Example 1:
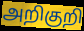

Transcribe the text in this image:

அறிகுறி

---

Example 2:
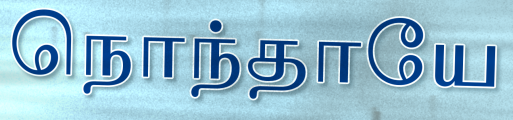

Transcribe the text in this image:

நொந்தாயே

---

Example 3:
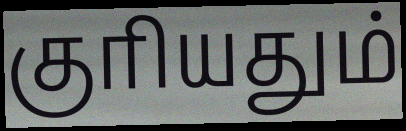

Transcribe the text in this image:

குரியதும்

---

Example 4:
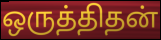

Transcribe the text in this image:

ஒருத்திதன்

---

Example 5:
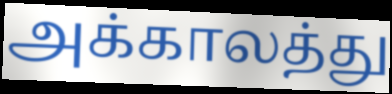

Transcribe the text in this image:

அக்காலத்து